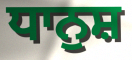
ਧਾਨੁਸ਼